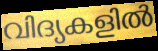
വിദ്യകളിൽ